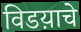
विडय़ाचे